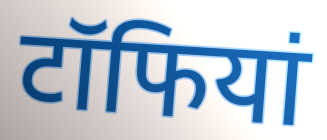
टॉफियां